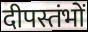
दीपस्तंभों